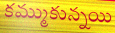
కమ్ముకున్నయి